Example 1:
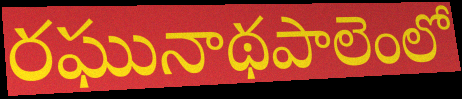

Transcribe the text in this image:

రఘునాథపాలెంలో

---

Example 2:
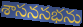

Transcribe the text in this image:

శాసనసభను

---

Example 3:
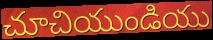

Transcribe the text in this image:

చూచియుండియు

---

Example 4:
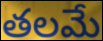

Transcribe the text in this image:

తలమే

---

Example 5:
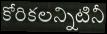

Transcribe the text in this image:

కోరికలన్నిటినీ